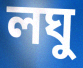
লঘু